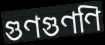
গুণগুণণি